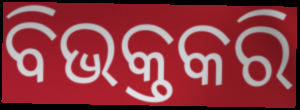
ବିଭକ୍ତକରି